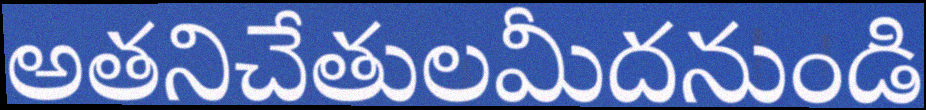
అతనిచేతులమీదనుండి